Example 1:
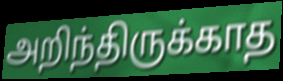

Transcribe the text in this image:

அறிந்திருக்காத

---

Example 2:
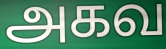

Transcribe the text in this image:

அகவ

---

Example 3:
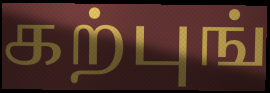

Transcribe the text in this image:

கற்புங்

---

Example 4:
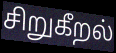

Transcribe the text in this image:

சிறுகீறல்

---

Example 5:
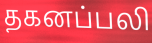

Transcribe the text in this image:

தகனப்பலி